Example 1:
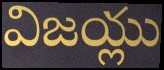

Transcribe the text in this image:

విజయ్లు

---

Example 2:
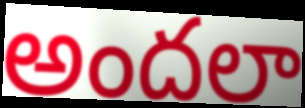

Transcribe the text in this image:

అందలా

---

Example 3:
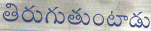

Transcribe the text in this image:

తిరుగుతుంటాడు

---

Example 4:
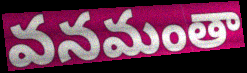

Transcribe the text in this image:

వనమంతా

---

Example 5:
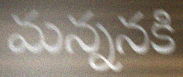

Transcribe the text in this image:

మన్ననకి